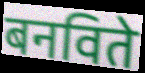
बनविते